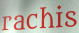
rachis